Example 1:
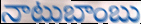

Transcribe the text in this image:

నాటుబాంబు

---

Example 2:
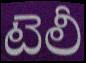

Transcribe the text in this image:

టెలీ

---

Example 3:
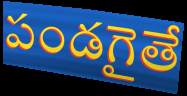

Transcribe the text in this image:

పండగైతే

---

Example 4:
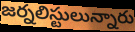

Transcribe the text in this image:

జర్నలిస్టులున్నారు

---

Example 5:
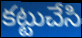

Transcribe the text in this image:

కట్టుచేసి